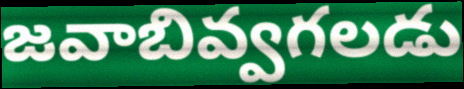
జవాబివ్వగలడు